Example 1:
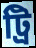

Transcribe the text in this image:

ট্রি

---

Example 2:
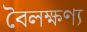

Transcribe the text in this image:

বৈলক্ষণ্য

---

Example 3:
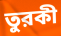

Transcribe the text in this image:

তুরকী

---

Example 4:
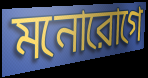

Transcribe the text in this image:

মনোরোগে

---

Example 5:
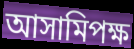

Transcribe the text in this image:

আসামিপক্ষ